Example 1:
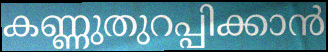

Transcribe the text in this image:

കണ്ണുതുറപ്പിക്കാൻ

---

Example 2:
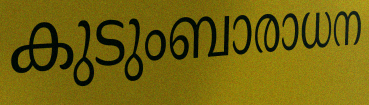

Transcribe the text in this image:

കുടുംബാരാധന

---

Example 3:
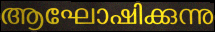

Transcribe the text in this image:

ആഘോഷിക്കുന്നു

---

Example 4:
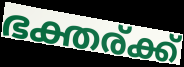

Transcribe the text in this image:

ഭക്തര്ക്ക്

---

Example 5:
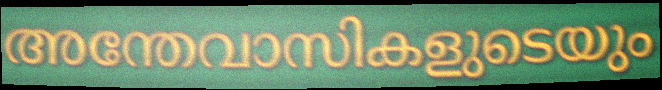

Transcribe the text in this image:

അന്തേവാസികളുടെയും